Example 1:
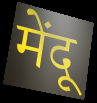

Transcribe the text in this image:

मेंदू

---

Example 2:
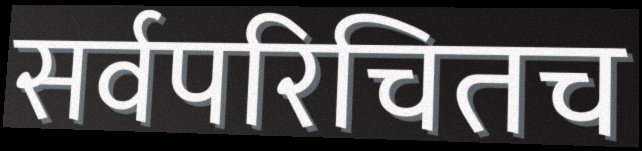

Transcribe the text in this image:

सर्वपरिचितच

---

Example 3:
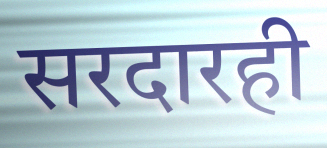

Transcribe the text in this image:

सरदारही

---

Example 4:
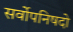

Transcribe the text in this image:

सर्वोपनिषदो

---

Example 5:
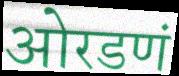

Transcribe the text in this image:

ओरडणं